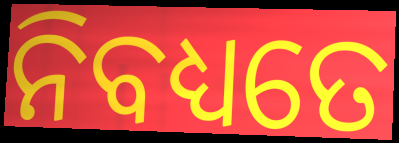
ନିବଧ୍ୟତେ